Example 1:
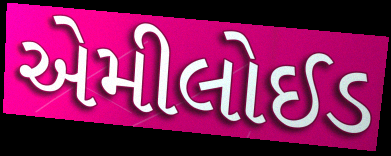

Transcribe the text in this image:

એમીલોઈડ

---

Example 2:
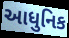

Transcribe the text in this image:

આધુનિક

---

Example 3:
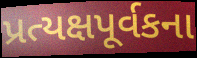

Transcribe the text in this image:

પ્રત્યક્ષપૂર્વકના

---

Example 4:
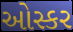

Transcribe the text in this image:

ઓસ્કર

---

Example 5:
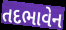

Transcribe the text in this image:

તદભાવેન